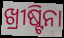
ଖ୍ରୀଷ୍ଟିନା